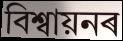
বিশ্বায়নৰ